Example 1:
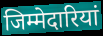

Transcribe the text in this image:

जिम्मेदारियां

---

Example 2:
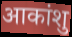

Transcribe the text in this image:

आकांशु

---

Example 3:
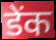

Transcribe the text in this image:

डेंक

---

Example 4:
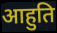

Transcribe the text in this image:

आहुति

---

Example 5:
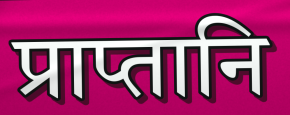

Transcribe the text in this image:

प्राप्तानि